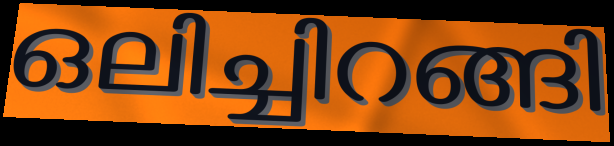
ഒലിച്ചിറങ്ങി